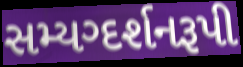
સમ્યગ્દર્શનરૂપી